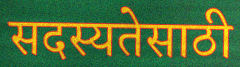
सदस्यतेसाठी